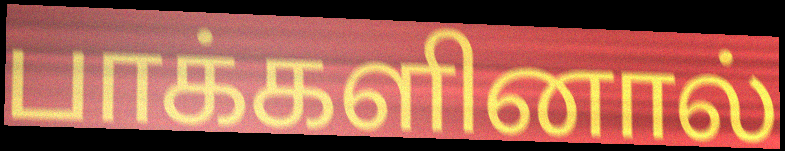
பாக்களினால்